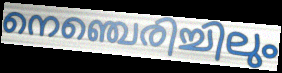
നെഞ്ചെരിച്ചിലും